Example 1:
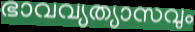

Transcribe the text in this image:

ഭാവവ്യത്യാസവും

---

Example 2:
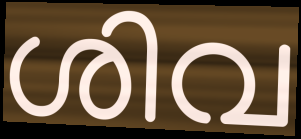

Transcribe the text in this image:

ശിവ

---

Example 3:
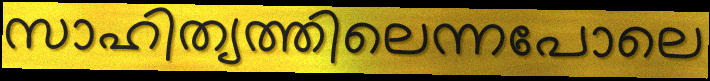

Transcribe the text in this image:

സാഹിത്യത്തിലെന്നപോലെ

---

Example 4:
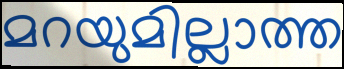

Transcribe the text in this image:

മറയുമില്ലാത്ത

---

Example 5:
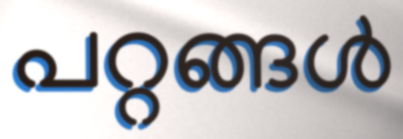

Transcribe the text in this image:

പറ്റങ്ങൾ